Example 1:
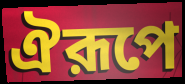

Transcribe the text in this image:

ঐরূপে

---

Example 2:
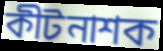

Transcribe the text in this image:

কীটনাশক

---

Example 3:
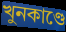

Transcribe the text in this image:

খুনকাণ্ডে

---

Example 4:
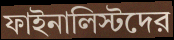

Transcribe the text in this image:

ফাইনালিস্টদের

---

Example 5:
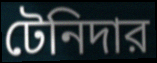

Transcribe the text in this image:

টেনিদার